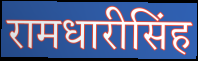
रामधारीसिंह